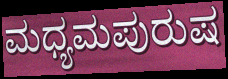
ಮಧ್ಯಮಪುರುಷ